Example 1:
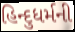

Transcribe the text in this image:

હિન્દુધર્મની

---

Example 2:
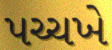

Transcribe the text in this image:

પચ્ચખે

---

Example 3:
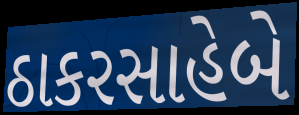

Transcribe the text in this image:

ઠાકરસાહેબે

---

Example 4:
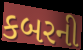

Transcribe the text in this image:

કબરની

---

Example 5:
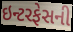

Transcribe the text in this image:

ઇન્ટરફેસની